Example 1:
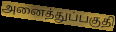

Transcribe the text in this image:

அனைத்துப்பகுதி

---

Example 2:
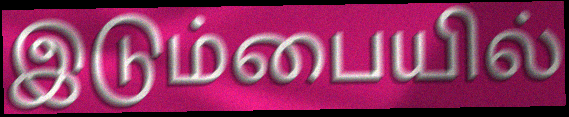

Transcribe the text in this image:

இடும்பையில்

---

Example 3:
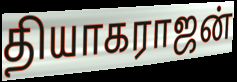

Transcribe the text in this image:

தியாகராஜன்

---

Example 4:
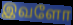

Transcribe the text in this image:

இவளோ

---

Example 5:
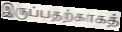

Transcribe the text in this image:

இருப்பதற்காகத்